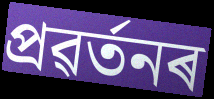
প্ৰৱৰ্তনৰ